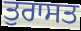
ਤੁਰਾਸਤ